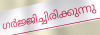
ഗർജ്ജിച്ചിരിക്കുന്നു